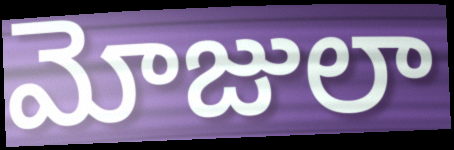
మోజులా